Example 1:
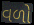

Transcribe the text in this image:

વળો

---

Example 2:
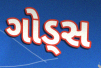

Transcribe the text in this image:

ગોડ્સ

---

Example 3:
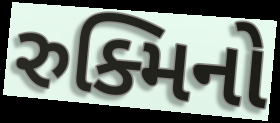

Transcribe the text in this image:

રુક્મિનો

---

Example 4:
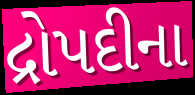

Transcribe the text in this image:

દ્રોપદીના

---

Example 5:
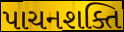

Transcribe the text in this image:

પાચનશક્તિ